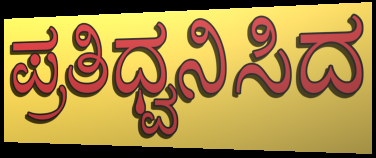
ಪ್ರತಿಧ್ವನಿಸಿದ